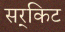
सर्किट